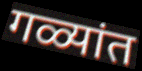
गळ्यांत